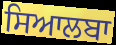
ਸਿਆਲਬਾ